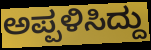
ಅಪ್ಪಳಿಸಿದ್ದು